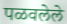
पळवलेले